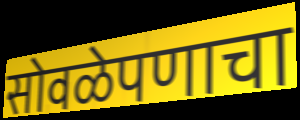
सोवळेपणाचा